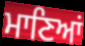
ਮਾਣਿਆਂ